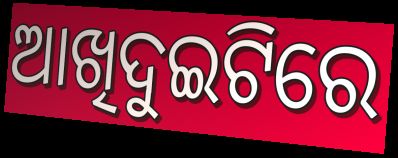
ଆଖିଦୁଇଟିରେ